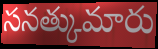
సనత్కుమారు